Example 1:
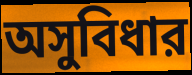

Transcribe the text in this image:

অসুবিধার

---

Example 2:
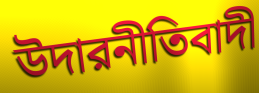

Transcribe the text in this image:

উদারনীতিবাদী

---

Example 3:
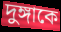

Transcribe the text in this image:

দুঙ্গাকে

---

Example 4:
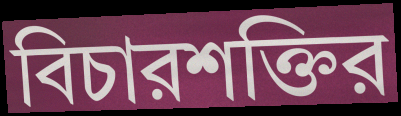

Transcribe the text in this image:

বিচারশক্তির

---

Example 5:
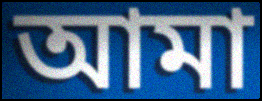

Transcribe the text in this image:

আমা